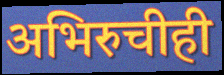
अभिरुचीही